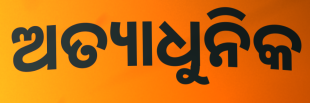
ଅତ୍ୟାଧୁନିକ